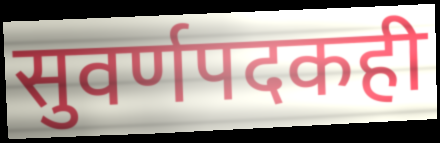
सुवर्णपदकही